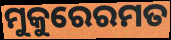
ମୁକୁରେରମତ